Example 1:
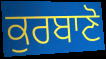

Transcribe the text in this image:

ਕੁਰਬਾਣੋ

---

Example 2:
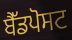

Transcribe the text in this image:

ਬੈੱਡਪੋਸਟ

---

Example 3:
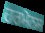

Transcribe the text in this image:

ਹਰਮੋਨਸ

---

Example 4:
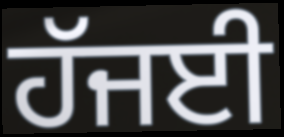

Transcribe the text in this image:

ਹੱਜਈ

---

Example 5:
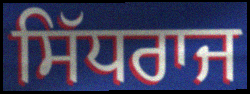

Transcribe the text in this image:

ਸਿੱਧਰਾਜ